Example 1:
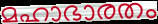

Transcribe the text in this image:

മഹാഭാരതം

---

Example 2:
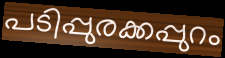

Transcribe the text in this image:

പടിപ്പുരക്കപ്പുറം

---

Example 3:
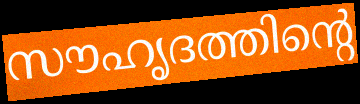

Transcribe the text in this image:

സൗഹൃദത്തിന്റെ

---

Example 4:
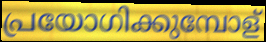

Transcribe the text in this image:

പ്രയോഗിക്കുമ്പോള്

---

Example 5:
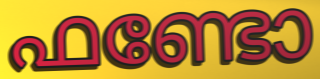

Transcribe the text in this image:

ഫണ്ടോ